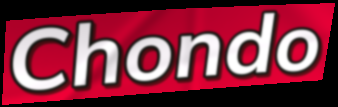
Chondo